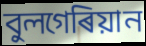
বুলগেৰিয়ান